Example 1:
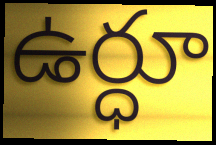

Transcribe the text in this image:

ఉర్ధూ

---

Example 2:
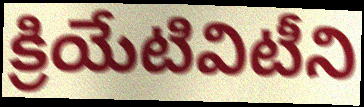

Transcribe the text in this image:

క్రియేటివిటీని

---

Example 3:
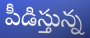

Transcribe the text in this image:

పీడిస్తున్న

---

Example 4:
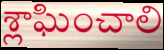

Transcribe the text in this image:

శ్లాఘించాలి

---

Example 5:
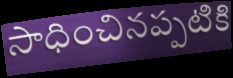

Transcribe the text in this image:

సాధించినప్పటికి